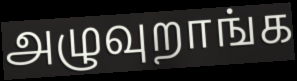
அழுவுறாங்க